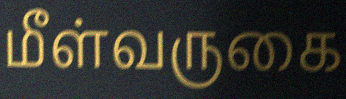
மீள்வருகை